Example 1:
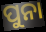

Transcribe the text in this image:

ପୁନା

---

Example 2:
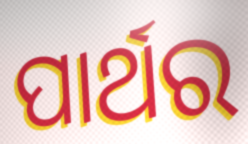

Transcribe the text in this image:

ପାର୍ଥର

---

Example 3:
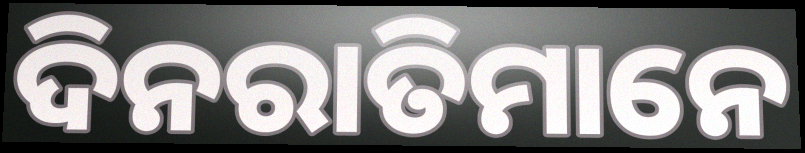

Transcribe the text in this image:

ଦିନରାତିମାନେ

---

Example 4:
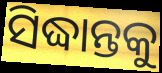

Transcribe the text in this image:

ସିଦ୍ଧାନ୍ତକୁ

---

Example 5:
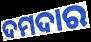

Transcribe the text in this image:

ଦମଦାର